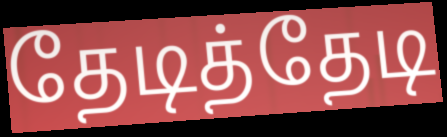
தேடித்தேடி